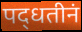
पद्धतीनं